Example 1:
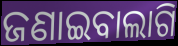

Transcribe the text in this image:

ଜଣାଇବାଲାଗି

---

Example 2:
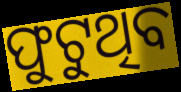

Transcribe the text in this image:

ଫୁଟୁଥିବ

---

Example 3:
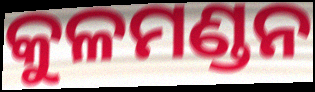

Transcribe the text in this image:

କୁଳମଣ୍ଡନ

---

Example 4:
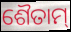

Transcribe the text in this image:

ଶୈତାମ୍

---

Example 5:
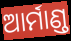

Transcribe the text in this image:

ଆର୍ମାଣ୍ଡ